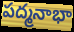
పద్మనాభా